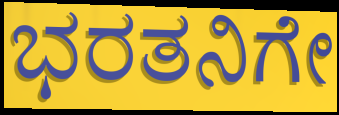
ಭರತನಿಗೇ